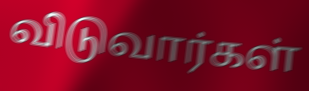
விடுவார்கள்